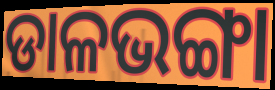
ଡାଳଭଙ୍ଗା